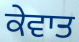
ਕੇਵਾਤ